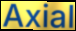
Axial